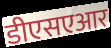
डीएसएआर